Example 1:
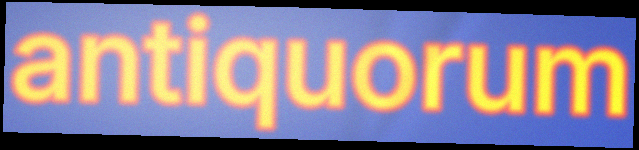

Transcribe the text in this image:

antiquorum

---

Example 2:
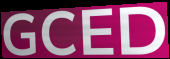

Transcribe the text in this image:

GCED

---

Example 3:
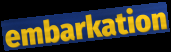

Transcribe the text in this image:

embarkation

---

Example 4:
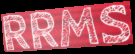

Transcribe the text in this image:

RRMS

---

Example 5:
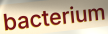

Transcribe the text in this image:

bacterium